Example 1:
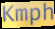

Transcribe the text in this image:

Kmph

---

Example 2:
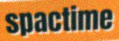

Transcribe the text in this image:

spactime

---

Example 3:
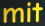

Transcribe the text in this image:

mit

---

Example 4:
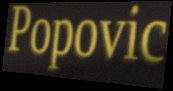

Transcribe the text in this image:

Popovic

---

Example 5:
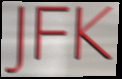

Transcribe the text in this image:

JFK